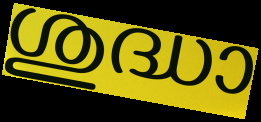
ശുദ്ധാ